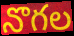
నొగల